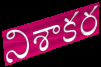
నిశాకర